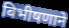
बिभीषणाने